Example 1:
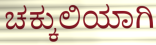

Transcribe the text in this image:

ಚಕ್ಕುಲಿಯಾಗಿ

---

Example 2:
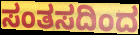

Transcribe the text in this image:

ಸಂತಸದಿಂದ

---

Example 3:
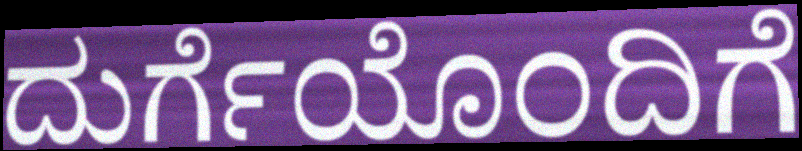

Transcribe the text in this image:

ದುರ್ಗೆಯೊಂದಿಗೆ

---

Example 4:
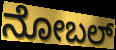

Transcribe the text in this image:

ನೋಬಲ್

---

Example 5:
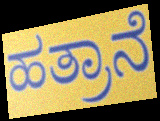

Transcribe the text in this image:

ಹತ್ರಾನೆ